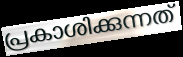
പ്രകാശിക്കുന്നത്